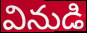
వినుడి